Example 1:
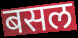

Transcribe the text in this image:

बसल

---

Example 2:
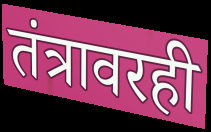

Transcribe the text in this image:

तंत्रावरही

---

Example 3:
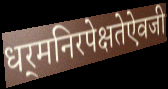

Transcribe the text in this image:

धर्मनिरपेक्षतेऐवजी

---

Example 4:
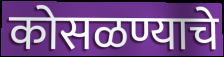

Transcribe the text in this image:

कोसळण्याचे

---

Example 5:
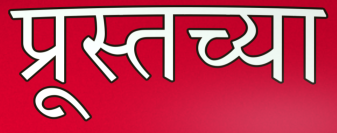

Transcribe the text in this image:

प्रूस्तच्या